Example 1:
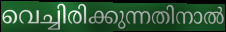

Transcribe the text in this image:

വെച്ചിരിക്കുന്നതിനാൽ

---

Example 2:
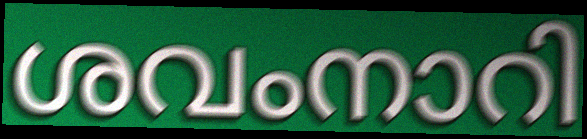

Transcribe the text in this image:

ശവംനാറി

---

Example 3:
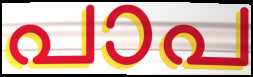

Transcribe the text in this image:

പാപ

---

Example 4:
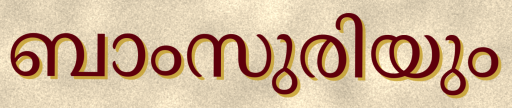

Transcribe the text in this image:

ബാംസുരിയും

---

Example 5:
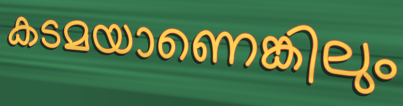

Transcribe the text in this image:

കടമയാണെങ്കിലും